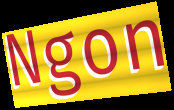
Ngon